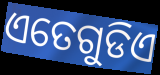
ଏତେଗୁଡିଏ